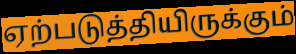
ஏற்படுத்தியிருக்கும்